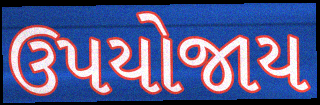
ઉપયોજાય